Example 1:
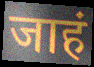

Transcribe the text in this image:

जाहं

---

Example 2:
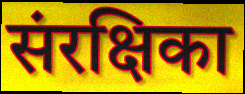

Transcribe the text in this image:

संरक्षिका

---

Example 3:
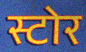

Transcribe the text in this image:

स्‍टोर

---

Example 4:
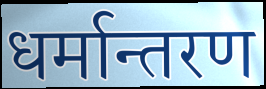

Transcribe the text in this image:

धर्मान्तरण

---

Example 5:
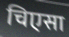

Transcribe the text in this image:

चिएसा